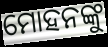
ମୋହନଙ୍କୁ